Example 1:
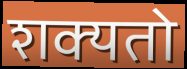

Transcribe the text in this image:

शक्यतो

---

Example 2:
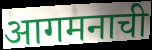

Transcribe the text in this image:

आगमनाची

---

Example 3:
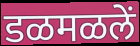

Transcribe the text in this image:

डळमळलें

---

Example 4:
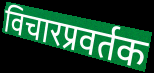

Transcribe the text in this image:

विचारप्रवर्तक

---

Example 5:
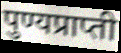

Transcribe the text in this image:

पुण्यप्राप्ती